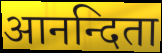
आनन्दिता